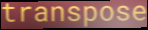
transpose